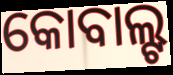
କୋବାଲ୍ଟ